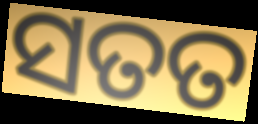
ସତତ